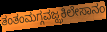
ತಂತಂಮಗ್ಗವಜ್ಝಕಿಲೇಸಾನಂ